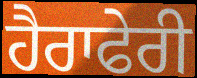
ਹੈਰਾਫੇਰੀ